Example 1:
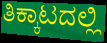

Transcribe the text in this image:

ತಿಕ್ಕಾಟದಲ್ಲಿ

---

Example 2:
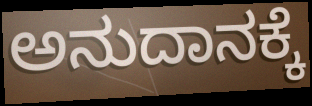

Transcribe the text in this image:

ಅನುದಾನಕ್ಕೆ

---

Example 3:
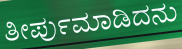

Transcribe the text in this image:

ತೀರ್ಪುಮಾಡಿದನು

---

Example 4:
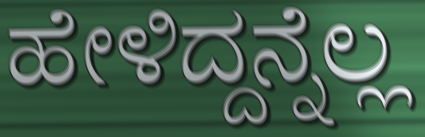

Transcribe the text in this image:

ಹೇಳಿದ್ದನ್ನೆಲ್ಲ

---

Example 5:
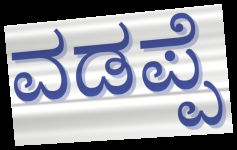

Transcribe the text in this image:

ವಡಪ್ಪೆ